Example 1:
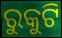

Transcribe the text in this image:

ରୁକୁଟି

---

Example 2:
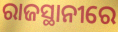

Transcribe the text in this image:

ରାଜସ୍ଥାନୀରେ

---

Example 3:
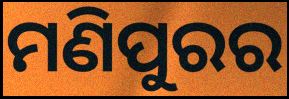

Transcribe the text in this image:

ମଣିପୁରର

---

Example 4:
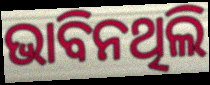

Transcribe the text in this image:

ଭାବିନଥିଲି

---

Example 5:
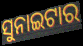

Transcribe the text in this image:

ସୁନାଇଟାର